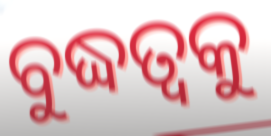
ବୁଦ୍ଧତ୍ଵକୁ